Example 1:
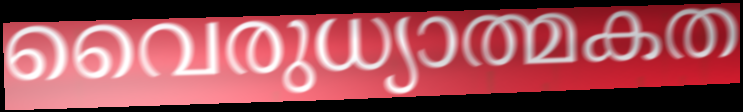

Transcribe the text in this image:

വൈരുധ്യാത്മകത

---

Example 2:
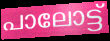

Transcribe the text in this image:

പാലോട്ട്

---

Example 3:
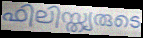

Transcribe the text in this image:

ഫിലിസ്ത്യരുടെ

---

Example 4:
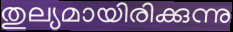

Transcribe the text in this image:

തുല്യമായിരിക്കുന്നു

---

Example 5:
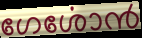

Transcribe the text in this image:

ഗേൎശോൻ